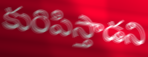
కురిపిస్తాడని